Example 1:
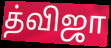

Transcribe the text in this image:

த்விஜா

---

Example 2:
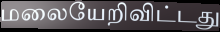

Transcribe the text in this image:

மலையேறிவிட்டது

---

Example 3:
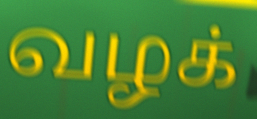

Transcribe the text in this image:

வழக்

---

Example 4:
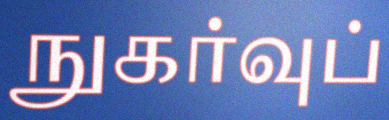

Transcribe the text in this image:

நுகர்வுப்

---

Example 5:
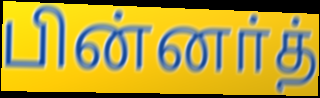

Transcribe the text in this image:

பின்னர்த்